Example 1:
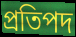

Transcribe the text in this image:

প্ৰতিপদ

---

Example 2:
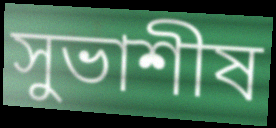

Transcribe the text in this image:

সুভাশীষ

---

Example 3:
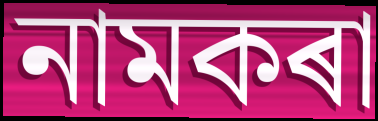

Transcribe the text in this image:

নামকৰা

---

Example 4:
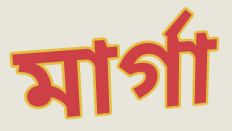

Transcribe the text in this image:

মাৰ্গা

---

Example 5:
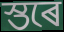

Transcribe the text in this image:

স্তৰে